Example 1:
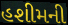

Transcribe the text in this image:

હશીમની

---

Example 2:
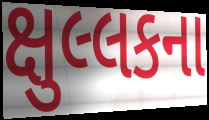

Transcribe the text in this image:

ક્ષુલ્લકના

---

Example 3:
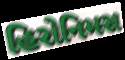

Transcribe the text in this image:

હિરોનિમસ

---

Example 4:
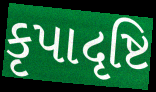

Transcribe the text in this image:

કૃપાદૃષ્ટિ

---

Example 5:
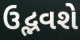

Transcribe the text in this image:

ઉદ્ભવશે